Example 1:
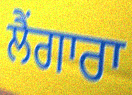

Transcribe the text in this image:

ਲੈਂਗਾਰਾ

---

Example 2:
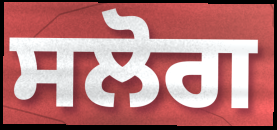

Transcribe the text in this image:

ਸਲੋਗ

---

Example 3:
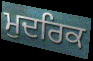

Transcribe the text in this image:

ਮੁਦਰਿਕ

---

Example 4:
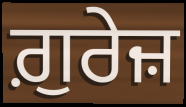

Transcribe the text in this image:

ਗ਼ੁਰੇਜ਼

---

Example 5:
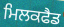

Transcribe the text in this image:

ਮਿਲਕਫੈਡ